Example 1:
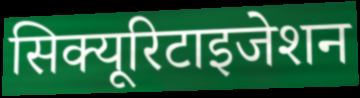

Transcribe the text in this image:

सिक्यूरिटाइजेशन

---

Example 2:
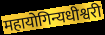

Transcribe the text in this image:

महायोगिन्यधीश्वरी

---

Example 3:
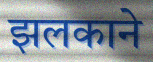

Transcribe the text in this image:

झलकाने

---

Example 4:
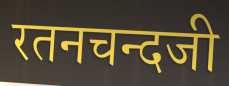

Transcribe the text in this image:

रतनचन्दजी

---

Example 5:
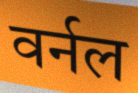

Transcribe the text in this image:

वर्नल